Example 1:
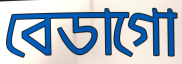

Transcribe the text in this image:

বেডাগো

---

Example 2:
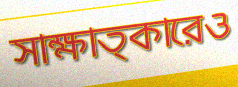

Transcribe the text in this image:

সাক্ষাত্কারেও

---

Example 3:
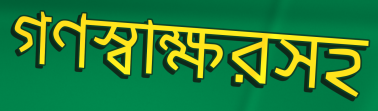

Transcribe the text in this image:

গণস্বাক্ষরসহ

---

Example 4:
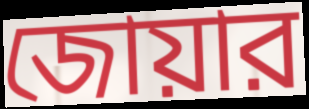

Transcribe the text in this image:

জোয়ার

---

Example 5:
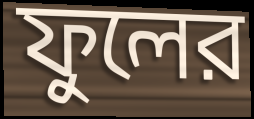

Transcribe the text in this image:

ফুলের